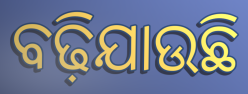
ବଢ଼ିଯାଉଛି